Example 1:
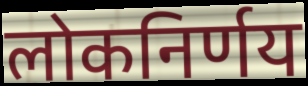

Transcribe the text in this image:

लोकनिर्णय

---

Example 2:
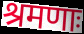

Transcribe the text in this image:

श्रमणाः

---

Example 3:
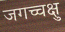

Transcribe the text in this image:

जगच्चक्षु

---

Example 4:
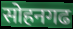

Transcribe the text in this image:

सोहनगढ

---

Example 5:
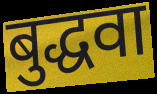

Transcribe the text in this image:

बुद्धवा